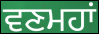
ਵਣਮਹਾਂ